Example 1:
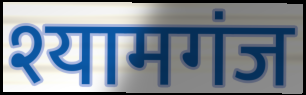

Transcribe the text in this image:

श्यामगंज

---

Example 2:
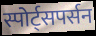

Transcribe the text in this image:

स्पोर्ट्सपर्सन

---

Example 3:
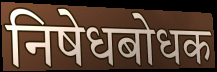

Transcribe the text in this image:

निषेधबोधक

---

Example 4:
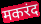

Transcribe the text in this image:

मकरंद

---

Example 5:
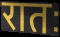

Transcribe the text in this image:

रातः